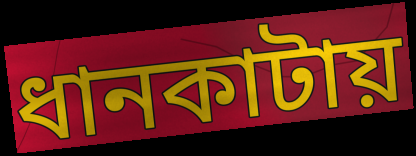
ধানকাটায়